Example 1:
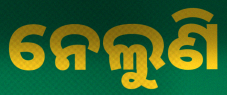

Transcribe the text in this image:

ନେଲୁଣି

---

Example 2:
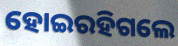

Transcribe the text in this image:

ହୋଇରହିଗଲେ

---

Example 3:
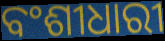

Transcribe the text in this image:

ବଂଶୀଧାରୀ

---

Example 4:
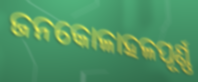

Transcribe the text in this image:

ଜନକୋଳାହଳପୂର୍ଣ୍ଣ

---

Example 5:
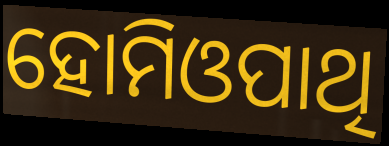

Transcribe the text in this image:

ହୋମିଓପାଥି